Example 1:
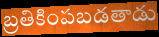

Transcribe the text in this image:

బ్రతికింపబడతాడు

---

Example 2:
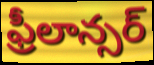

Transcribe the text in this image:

ఫ్రీలాన్సర్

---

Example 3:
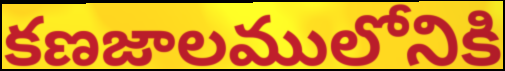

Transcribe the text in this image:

కణజాలములోనికి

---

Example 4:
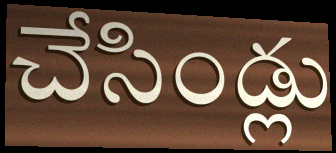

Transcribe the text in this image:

చేసిండ్లు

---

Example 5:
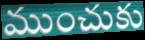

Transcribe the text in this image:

ముంచుకు